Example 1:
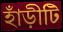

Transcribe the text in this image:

হাঁড়ীটি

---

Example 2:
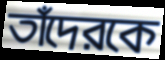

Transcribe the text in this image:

তাঁদেরকে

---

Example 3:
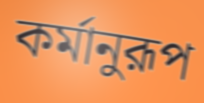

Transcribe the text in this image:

কর্মানুরূপ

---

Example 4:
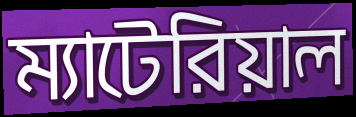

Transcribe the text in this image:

ম্যাটেরিয়াল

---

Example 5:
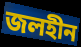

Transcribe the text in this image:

জলহীন